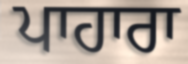
ਪਾਹਾਰਾ